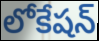
లోకేషన్